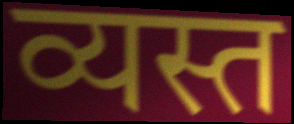
व्यस्त